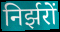
निर्झरों